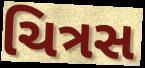
ચિત્રસ